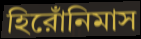
হিরোঁনিমাস